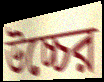
উচ্চের